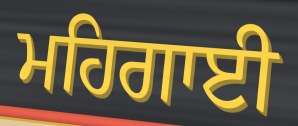
ਮਹਿਗਾਈ